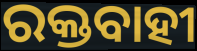
ରକ୍ତବାହୀ